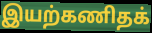
இயற்கணிதக்